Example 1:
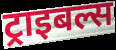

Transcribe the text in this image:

ट्राइबल्स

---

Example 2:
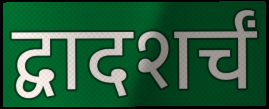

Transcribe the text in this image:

द्वादशर्चं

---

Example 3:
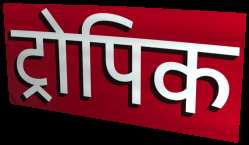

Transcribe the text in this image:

ट्रोपिक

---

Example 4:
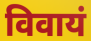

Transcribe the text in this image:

विवायं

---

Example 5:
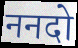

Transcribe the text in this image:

ननदो